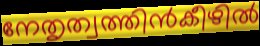
നേതൃത്വത്തിൻകീഴിൽ